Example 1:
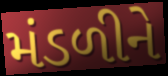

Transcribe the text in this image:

મંડળીને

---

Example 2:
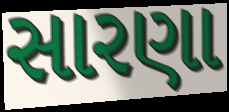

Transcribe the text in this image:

સારણા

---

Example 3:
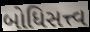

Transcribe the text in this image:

બોધિસત્ત્વ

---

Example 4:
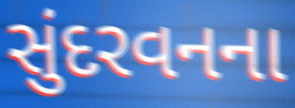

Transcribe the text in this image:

સુંદરવનના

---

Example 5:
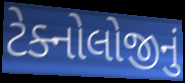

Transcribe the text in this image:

ટેક્નોલોજીનું